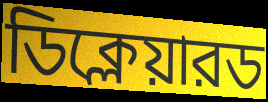
ডিক্লেয়ারড